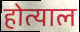
होत्याल